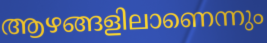
ആഴങ്ങളിലാണെന്നും